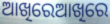
ଆଖିରେଆଖିରେ